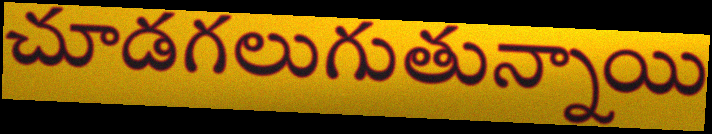
చూడగలుగుతున్నాయి